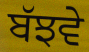
ਬੱਝਵੇ